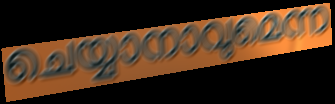
ചെയ്യാനാവുമെന്ന